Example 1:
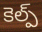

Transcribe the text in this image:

కెల్ప్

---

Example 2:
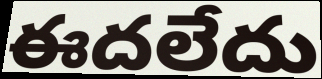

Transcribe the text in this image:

ఈదలేదు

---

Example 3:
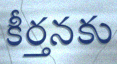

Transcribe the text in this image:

కీర్తనకు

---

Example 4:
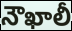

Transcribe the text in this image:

నౌఖాలీ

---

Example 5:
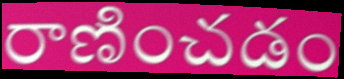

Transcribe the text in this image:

రాణించడం